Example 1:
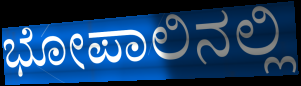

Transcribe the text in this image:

ಭೋಪಾಲಿನಲ್ಲಿ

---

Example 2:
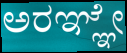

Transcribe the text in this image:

ಅರಞ್ಞೇ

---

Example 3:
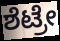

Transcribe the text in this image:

ಶೆಟ್ರೇ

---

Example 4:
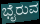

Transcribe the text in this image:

ಭೈರುವ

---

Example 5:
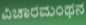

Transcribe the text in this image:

ವಿಚಾರಮಂಥನ